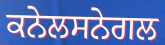
ਕਨੇਲਸਨੇਗਲ